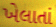
ખેલાતાં